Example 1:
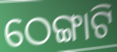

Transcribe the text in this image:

ଠେଙ୍ଗାଟି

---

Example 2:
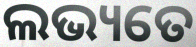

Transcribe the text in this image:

ଲଭ୍ୟତେ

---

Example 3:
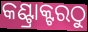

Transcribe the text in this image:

କଣ୍ଟ୍ରାକ୍ଟରଠୁ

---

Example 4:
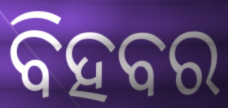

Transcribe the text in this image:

ବିହବର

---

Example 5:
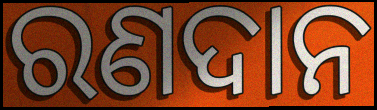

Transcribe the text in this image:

ରଣଦାନ